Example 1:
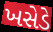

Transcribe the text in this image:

ખસેડે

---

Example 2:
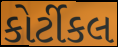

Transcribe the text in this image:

કોર્ટીકલ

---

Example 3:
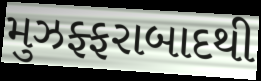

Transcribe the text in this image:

મુઝફ્ફરાબાદથી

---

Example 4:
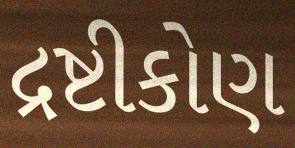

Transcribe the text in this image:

દ્રષ્ટીકોણ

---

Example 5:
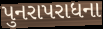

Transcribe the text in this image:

પુનરાપરાધના